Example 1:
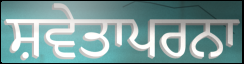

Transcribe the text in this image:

ਸ਼ਵੇਤਾਪਰਨਾ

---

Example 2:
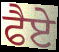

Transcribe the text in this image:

ਫੈਏ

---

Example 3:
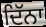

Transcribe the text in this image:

ਦਿੱਨਾ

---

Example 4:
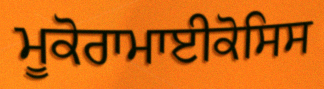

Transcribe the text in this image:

ਮੂਕੋਰਾਮਾਈਕੋਸਿਸ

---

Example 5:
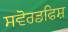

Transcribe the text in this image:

ਸਵੋਰਡਫਿਸ਼